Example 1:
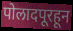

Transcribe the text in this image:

पोलादपूरहून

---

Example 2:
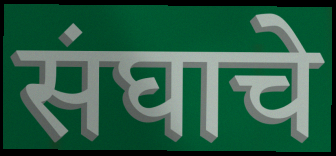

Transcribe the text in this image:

संघाचे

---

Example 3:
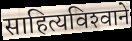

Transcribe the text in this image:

साहित्यविश्वाने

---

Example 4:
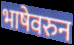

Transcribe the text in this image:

भाषेवरुन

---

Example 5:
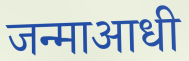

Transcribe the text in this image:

जन्माआधी